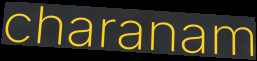
charanam